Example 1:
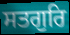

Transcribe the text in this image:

ਸਤਗੁਰਿ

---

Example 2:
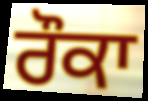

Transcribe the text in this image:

ਰੌਕਾ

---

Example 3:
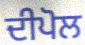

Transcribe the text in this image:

ਦੀਪੋਲ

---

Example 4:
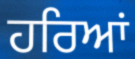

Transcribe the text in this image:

ਹਰਿਆਂ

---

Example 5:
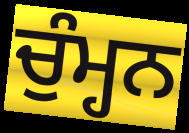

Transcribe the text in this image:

ਚੁੰਮ੍ਹਨ